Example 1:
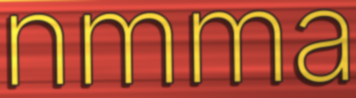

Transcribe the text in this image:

nmma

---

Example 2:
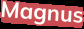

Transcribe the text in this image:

Magnus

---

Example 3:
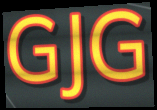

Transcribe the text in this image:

GJG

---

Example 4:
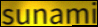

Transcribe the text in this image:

sunami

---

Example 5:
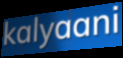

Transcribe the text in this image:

kalyaani